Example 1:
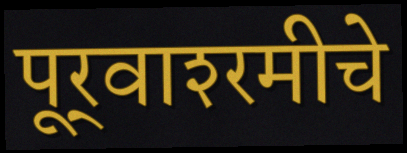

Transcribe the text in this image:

पूर्वाश्रमीचे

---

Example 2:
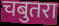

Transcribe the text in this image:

चबुतरा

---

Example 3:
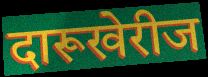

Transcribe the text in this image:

दारूखेरीज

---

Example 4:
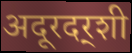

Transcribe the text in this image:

अदूरदर्शी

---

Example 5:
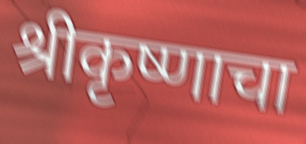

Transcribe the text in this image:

श्रीकृष्णाचा